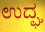
ಉದ್ಘ